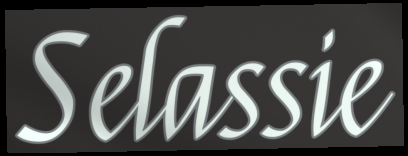
Selassie